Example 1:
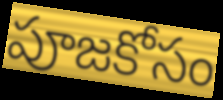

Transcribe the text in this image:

పూజకోసం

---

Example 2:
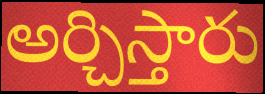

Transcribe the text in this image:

అర్చిస్తారు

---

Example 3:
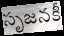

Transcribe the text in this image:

సృజనకీ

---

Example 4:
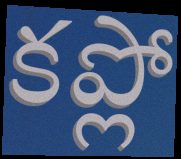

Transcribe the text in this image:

కప్లో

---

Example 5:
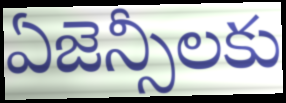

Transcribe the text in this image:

ఏజెన్సీలకు